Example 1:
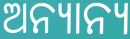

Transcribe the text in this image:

ଅନ୍ୟାନ୍ୟ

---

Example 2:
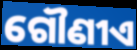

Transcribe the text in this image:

ଗୌଣୀଏ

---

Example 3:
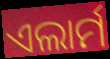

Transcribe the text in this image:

ଏଲାର୍ମ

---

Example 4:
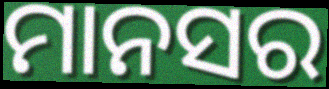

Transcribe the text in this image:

ମାନସର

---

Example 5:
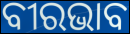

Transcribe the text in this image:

ବୀରଭାବ